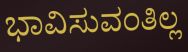
ಭಾವಿಸುವಂತಿಲ್ಲ